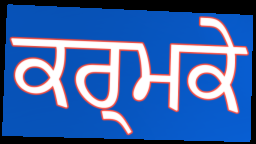
ਕਰ੍ਮਕੇ